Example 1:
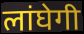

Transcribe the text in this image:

लांघेगी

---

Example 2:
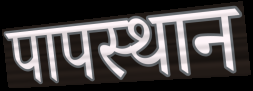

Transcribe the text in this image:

पापस्थान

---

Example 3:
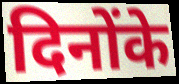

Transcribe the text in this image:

दिनोंके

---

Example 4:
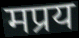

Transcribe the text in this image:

मप्रय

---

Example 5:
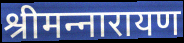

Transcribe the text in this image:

श्रीमन्नारायण